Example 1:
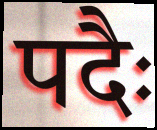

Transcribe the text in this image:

पदैः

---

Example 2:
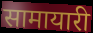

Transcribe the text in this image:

सामायारी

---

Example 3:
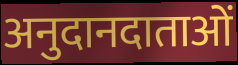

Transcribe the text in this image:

अनुदानदाताओं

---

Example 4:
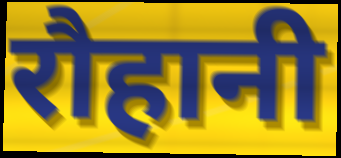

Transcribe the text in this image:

रौहानी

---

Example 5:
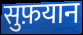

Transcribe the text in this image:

सुफ़यान